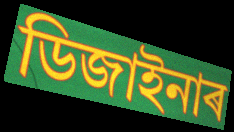
ডিজাইনাৰ